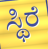
ಸ್ಥಿರೆ